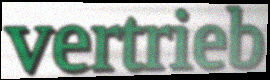
vertrieb